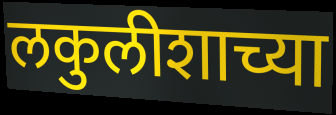
लकुलीशाच्या